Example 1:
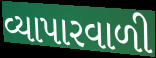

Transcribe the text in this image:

વ્યાપારવાળી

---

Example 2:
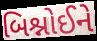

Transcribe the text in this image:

બિશ્નોઈને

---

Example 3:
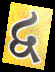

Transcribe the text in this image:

દ્વ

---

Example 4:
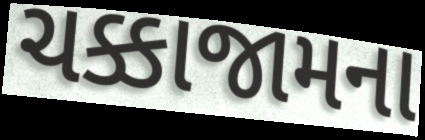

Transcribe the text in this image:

ચક્કાજામના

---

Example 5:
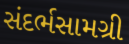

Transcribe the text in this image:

સંદર્ભસામગ્રી